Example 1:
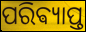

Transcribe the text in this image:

ପରିଵ୍ୟାପ୍ତ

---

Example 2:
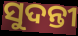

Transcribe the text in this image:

ସୁଦନ୍ତୀ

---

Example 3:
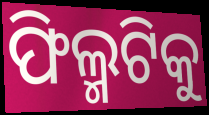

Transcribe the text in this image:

ଫିଲ୍ମଟିକୁ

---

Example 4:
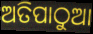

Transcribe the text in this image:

ଅତିପାଠୁଆ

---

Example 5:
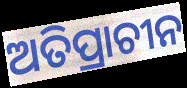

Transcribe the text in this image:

ଅତିପ୍ରାଚୀନ